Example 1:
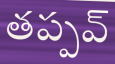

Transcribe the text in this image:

తప్పవ్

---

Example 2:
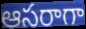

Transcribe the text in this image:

ఆసరాగా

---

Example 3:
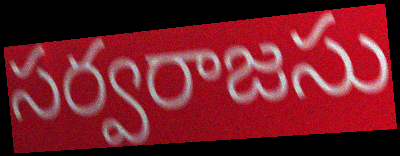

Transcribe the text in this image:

సర్వరాజసు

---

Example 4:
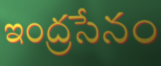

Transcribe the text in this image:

ఇంద్రసేనం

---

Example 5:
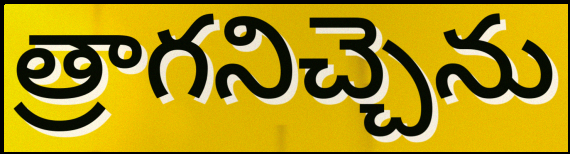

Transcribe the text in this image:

త్రాగనిచ్చెను